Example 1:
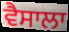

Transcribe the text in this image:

ਵੈਸਾਲਾ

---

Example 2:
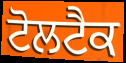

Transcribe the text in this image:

ਟੋਲਟੈਕ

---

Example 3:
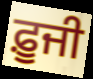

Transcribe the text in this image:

ਫ਼ੂਜੀ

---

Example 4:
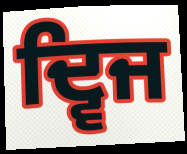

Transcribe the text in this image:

ਦ੍ਵਿਜ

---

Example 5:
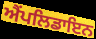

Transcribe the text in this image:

ਐੰਪਲਿਡਾਇਨ